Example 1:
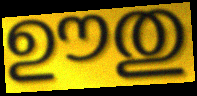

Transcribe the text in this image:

ഊതു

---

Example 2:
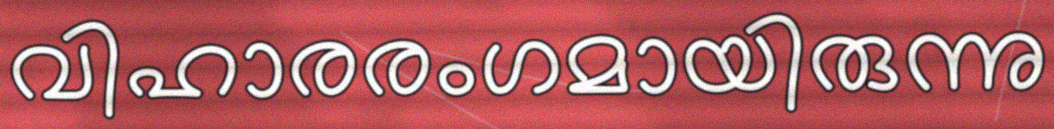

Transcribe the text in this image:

വിഹാരരംഗമായിരുന്നു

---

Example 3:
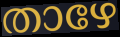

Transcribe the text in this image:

താഴേ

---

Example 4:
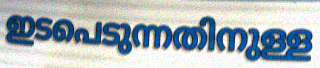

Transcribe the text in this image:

ഇടപെടുന്നതിനുള്ള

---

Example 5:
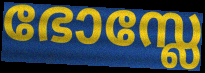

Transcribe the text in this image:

ഭോസ്ലേ